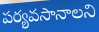
పర్యవసానాలని